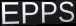
EPPS